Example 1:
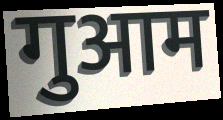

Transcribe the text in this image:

गुआम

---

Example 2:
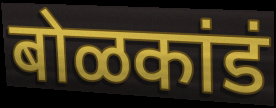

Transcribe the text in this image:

बोळकांडं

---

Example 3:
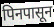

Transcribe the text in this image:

पिनपासून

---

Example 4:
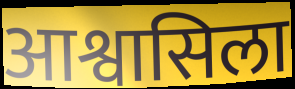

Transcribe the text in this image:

आश्वासिला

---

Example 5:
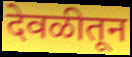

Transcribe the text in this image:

देवळीतून